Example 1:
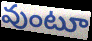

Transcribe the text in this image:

వుంటూ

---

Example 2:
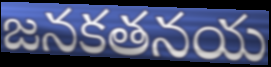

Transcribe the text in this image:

జనకతనయ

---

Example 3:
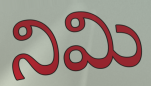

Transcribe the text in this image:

నిమి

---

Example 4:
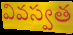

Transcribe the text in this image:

వివస్వత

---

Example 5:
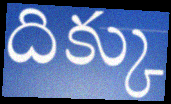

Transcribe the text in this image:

దిక్కు